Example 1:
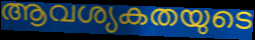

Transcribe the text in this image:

ആവശ്യകതയുടെ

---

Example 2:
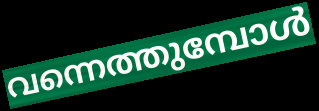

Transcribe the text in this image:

വന്നെത്തുമ്പോൾ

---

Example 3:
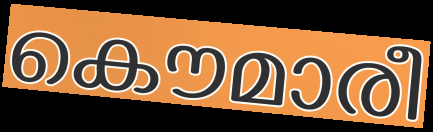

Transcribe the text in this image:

കൌമാരീ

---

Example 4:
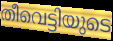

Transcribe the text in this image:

തീവെട്ടിയുടെ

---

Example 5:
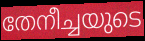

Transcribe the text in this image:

തേനീച്ചയുടെ